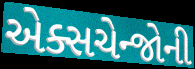
એક્સચેન્જોની